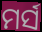
ମର୍ସ